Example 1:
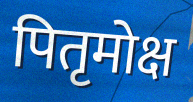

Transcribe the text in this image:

पितृमोक्ष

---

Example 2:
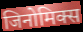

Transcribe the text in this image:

जिनोमिक्स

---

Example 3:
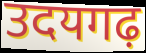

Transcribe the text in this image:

उदयगढ़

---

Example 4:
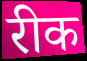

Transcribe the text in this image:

रीक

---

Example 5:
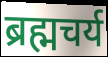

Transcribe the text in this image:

ब्रह्मचर्य